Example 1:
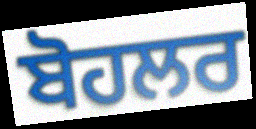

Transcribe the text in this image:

ਬੋਹਲਰ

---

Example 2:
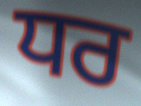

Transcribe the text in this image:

ਧਰ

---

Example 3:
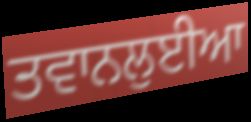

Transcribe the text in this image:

ਤਵਾਨਲੁਈਆ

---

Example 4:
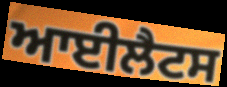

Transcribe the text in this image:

ਆਈਲੈਟਸ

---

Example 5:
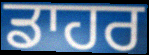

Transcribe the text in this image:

ਡਾਹਰ